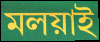
মলয়াই